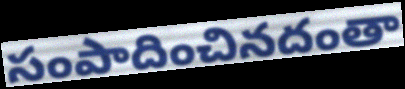
సంపాదించినదంతా